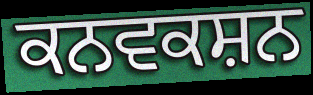
ਕਨਵਕਸ਼ਨ